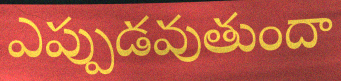
ఎప్పుడవుతుందా